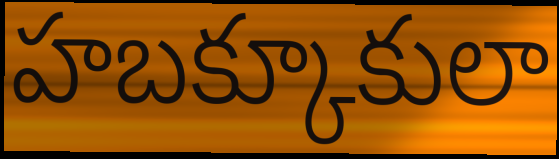
హబక్కూకులా